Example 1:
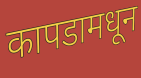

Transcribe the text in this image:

कापडामधून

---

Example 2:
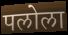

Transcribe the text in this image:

पलोला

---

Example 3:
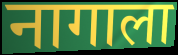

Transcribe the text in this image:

नागाला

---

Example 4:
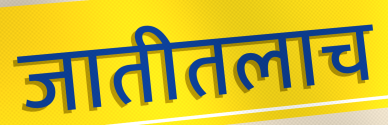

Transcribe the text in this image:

जातीतलाच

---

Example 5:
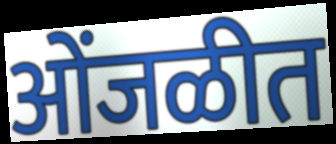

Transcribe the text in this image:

ओंजळीत